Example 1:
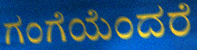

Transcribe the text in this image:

ಗಂಗೆಯೆಂದರೆ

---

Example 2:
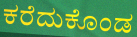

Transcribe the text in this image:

ಕರೆದುಕೊಂಡ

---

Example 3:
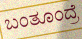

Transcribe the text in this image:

ಬಂತೂಂದ್ರೆ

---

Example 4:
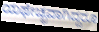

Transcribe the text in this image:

ಯಥೇಚ್ಛವಾಗಿದ್ದರೂ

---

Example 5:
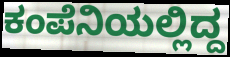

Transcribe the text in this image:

ಕಂಪೆನಿಯಲ್ಲಿದ್ದ